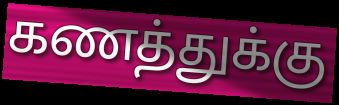
கணத்துக்கு